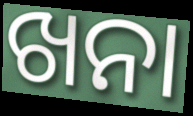
ଖନା